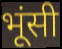
भूंसी